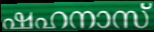
ഷഹനാസ്